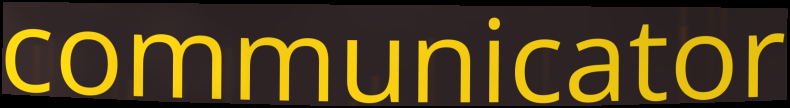
communicator